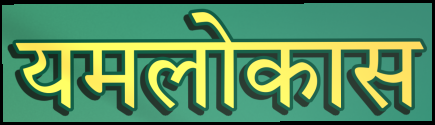
यमलोकास